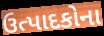
ઉત્પાદકોના